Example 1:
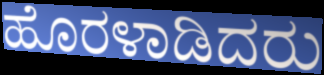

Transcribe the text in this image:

ಹೊರಳಾಡಿದರು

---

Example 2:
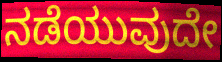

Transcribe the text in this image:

ನಡೆಯುವುದೇ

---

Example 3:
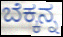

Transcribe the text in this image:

ಬೆಕ್ಕನ್ನ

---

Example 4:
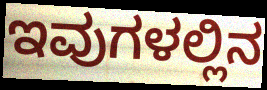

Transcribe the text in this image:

ಇವುಗಳಲ್ಲಿನ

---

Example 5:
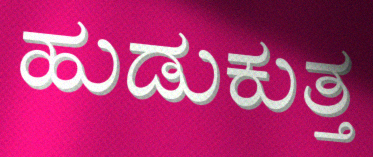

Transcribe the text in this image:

ಹುಡುಕುತ್ತ